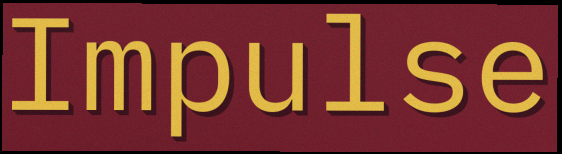
Impulse